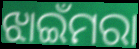
ଝାଇଁମରା